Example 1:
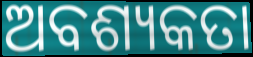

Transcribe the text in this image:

ଅବଶ୍ୟକତା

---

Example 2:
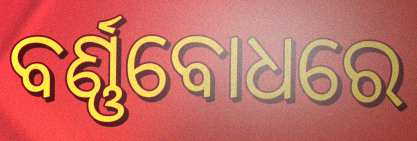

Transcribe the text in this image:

ବର୍ଣ୍ଣବୋଧରେ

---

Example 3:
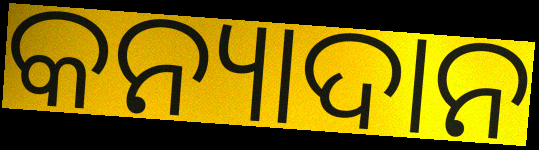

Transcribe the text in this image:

କନ୍ୟାଦାନ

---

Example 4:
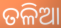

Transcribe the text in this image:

ତଳିଆ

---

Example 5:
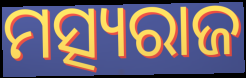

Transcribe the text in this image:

ମତ୍ସ୍ୟରାଜ